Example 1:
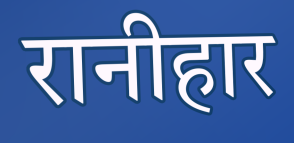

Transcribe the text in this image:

रानीहार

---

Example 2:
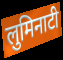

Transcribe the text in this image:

लुमिनाटी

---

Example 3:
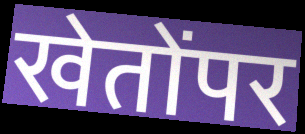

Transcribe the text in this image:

खेतोंपर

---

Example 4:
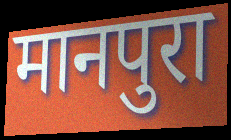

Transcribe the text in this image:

मानपुरा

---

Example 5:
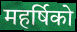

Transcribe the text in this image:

महर्षिको